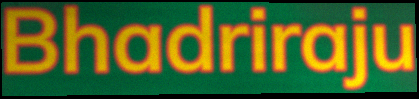
Bhadriraju